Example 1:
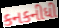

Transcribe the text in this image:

કનકનીધી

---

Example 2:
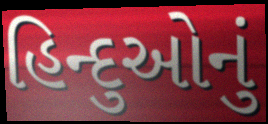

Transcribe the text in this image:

હિન્દુઓનું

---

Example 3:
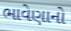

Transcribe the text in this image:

ભાવેણાનો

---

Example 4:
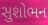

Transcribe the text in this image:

સુશોભન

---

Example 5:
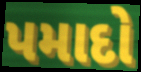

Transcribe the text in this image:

પમાદો